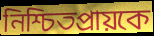
নিশ্চিতপ্রায়কে